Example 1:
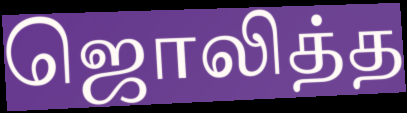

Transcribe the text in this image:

ஜொலித்த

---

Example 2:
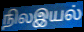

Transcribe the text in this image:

நிலஇயல்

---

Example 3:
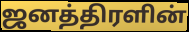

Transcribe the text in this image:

ஜனத்திரளின்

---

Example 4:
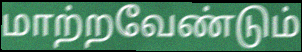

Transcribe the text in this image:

மாற்றவேண்டும்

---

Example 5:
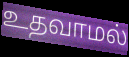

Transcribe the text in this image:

உதவாமல்